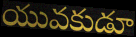
యువకుడూ